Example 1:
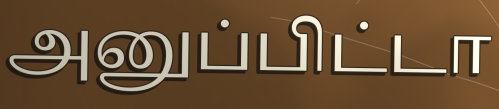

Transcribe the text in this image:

அனுப்பிட்டா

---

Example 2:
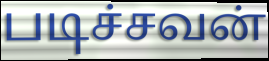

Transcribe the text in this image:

படிச்சவன்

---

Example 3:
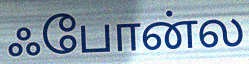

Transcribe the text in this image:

ஃபோன்ல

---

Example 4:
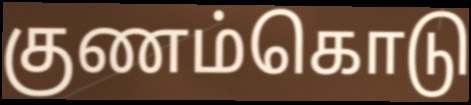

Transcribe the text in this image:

குணம்கொடு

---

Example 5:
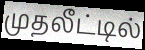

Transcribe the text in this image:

முதலீட்டில்